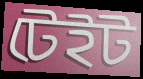
টেইট